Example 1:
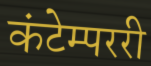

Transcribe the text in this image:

कंटेम्पररी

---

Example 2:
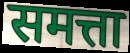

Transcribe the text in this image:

समत्ता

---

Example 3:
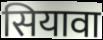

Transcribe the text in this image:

सियावा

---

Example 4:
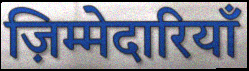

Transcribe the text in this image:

ज़िम्मेदारियाँ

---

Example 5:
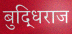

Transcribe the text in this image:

बुद्धिराज